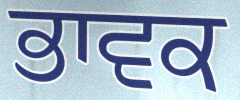
ਭਾਵਕ